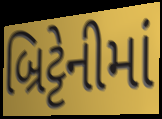
બ્રિટ્ટેનીમાં